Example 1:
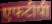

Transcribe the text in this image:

एफटीपी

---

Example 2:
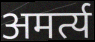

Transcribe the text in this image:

अमर्त्य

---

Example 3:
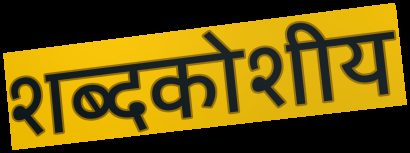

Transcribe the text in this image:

शब्दकोशीय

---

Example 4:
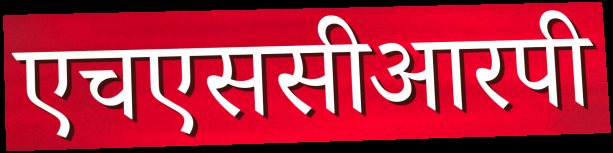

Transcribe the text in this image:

एचएससीआरपी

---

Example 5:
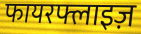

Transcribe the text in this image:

फायरफ्लाइज़